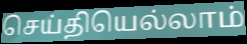
செய்தியெல்லாம்